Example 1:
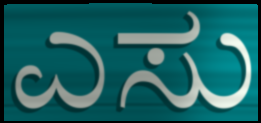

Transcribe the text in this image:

ಎಸು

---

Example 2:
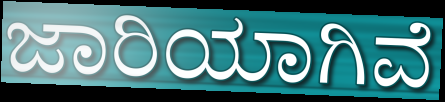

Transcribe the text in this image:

ಜಾರಿಯಾಗಿವೆ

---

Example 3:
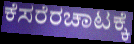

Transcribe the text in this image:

ಕೆಸರೆರಚಾಟಕ್ಕೆ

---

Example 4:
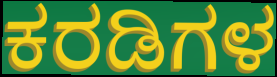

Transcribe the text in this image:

ಕರಡಿಗಳ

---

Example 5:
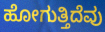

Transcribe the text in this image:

ಹೋಗುತ್ತಿದೆವು